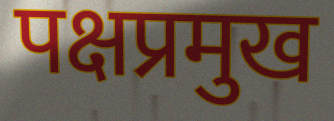
पक्षप्रमुख